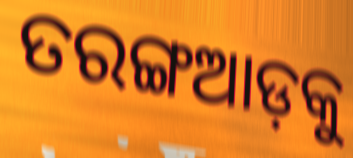
ତରଙ୍ଗଆଡ଼କୁ